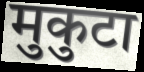
मुकुटा